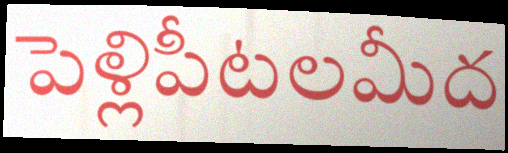
పెళ్లిపీటలమీద